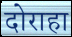
दोराहा